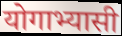
योगाभ्यासी